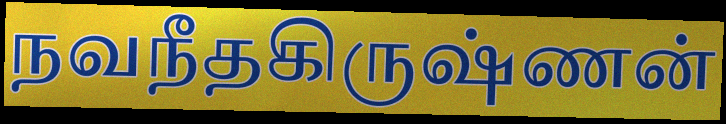
நவநீதகிருஷ்ணன்